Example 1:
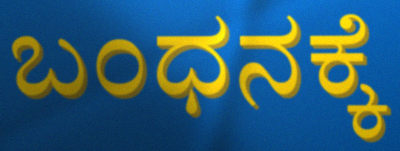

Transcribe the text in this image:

ಬಂಧನಕ್ಕೆ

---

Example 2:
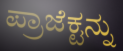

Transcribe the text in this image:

ಪ್ರಾಜೆಕ್ಟನ್ನು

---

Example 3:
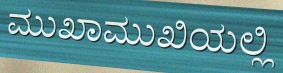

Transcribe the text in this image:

ಮುಖಾಮುಖಿಯಲ್ಲಿ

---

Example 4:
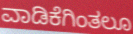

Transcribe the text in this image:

ವಾಡಿಕೆಗಿಂತಲೂ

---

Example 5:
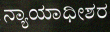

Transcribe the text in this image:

ನ್ಯಾಯಾಧೀಶರ